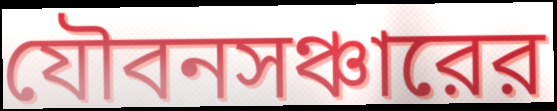
যৌবনসঞ্চারের